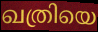
ഖത്രിയെ